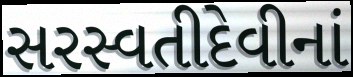
સરસ્વતીદેવીનાં